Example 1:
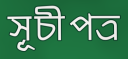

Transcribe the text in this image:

সূচীপত্র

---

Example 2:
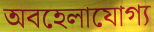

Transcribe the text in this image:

অবহেলাযোগ্য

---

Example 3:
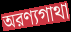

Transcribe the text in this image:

অরণ্যগাথা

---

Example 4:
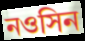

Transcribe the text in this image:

নওসিন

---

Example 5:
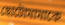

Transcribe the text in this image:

ছোটোমামাকে